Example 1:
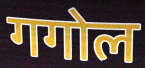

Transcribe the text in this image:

गगोल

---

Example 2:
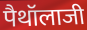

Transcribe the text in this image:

पैथॉलाजी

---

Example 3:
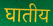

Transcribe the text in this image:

घातीय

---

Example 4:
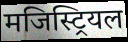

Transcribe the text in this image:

मजिस्ट्रियल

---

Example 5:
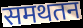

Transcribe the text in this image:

समथतन